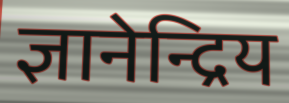
ज्ञानेन्द्रिय